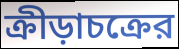
ক্রীড়াচক্রের